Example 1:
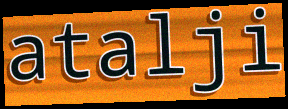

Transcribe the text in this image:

atalji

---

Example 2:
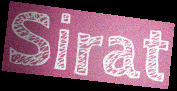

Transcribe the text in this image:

Sirat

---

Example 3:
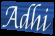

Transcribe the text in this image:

Adhi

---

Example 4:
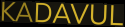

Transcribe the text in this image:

KADAVUL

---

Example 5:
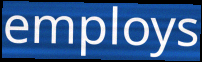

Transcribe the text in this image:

employs